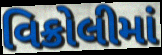
વિક્રોલીમાં